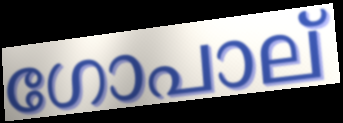
ഗോപാല്